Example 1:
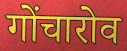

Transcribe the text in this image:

गोंचारोव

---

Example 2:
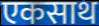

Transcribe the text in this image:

एकसाथ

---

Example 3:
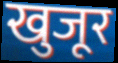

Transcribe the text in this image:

खुजूर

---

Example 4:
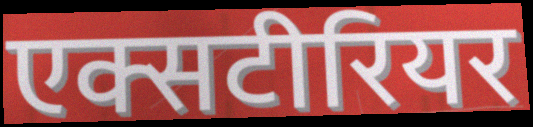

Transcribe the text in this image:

एक्सटीरियर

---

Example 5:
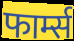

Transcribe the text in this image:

फार्म्स